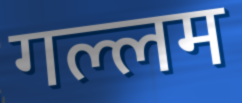
गल्लम